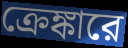
ক্রেঙ্কারে